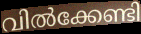
വിൽക്കേണ്ടി